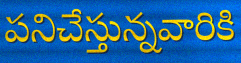
పనిచేస్తున్నవారికి